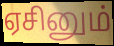
ஏசினும்